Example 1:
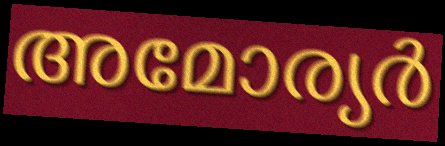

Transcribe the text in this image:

അമോര്യർ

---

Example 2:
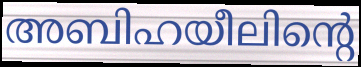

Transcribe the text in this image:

അബിഹയീലിന്റെ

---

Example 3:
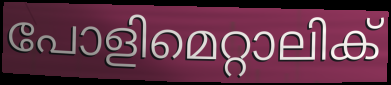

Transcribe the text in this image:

പോളിമെറ്റാലിക്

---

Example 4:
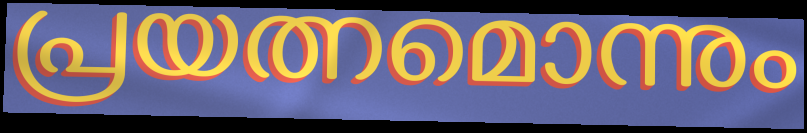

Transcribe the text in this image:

പ്രയത്നമൊന്നും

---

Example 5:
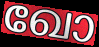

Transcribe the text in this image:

ഖോ